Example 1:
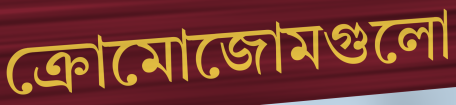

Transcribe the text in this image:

ক্রোমোজোমগুলো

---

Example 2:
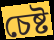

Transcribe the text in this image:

চেষ্ট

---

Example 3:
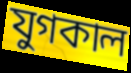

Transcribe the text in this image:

যুগকাল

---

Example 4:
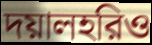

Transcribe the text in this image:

দয়ালহরিও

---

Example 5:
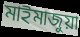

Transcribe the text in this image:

মাইমাজুয়া